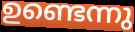
ഉണ്ടെന്നു